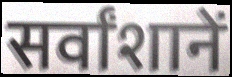
सर्वांशानें